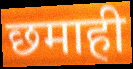
छमाही